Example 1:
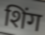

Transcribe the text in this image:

शिंग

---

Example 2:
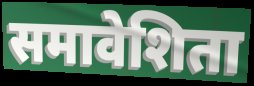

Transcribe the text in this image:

समावेशिता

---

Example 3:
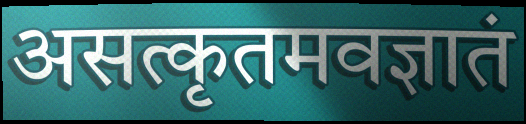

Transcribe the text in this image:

असत्कृतमवज्ञातं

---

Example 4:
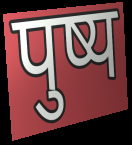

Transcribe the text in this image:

पुष्य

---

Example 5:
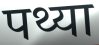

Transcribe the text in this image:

पथ्या